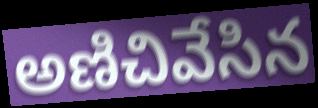
అణిచివేసిన